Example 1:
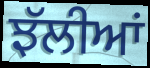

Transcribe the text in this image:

ਝੱਲੀਆਂ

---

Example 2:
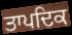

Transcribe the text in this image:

ਤਾਪਦਿਕ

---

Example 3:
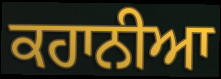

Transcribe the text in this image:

ਕਹਾਨੀਆ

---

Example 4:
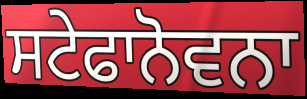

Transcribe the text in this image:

ਸਟੇਫਾਨੋਵਨਾ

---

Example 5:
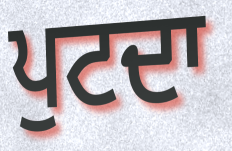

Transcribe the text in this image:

ਪੁਟਦਾ